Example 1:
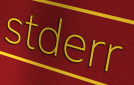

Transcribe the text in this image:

stderr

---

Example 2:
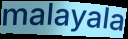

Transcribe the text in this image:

malayala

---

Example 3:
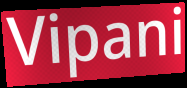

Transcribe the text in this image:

Vipani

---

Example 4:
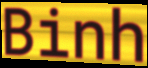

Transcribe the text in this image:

Binh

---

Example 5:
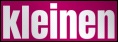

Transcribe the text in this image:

kleinen